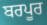
ਬਰਪੂਰ